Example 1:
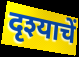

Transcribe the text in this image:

दृश्याचें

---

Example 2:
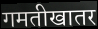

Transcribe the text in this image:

गमतीखातर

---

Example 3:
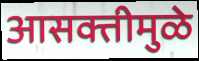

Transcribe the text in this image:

आसक्तीमुळे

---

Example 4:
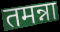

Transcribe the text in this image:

तमन्ना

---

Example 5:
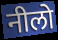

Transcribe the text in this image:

नीलो